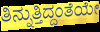
ತಿನ್ನುತ್ತಿದ್ದಂತೆಯೇ